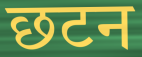
छटन